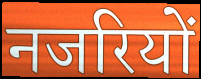
नजरियों